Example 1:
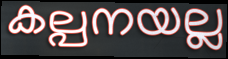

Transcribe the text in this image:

കല്പനയല്ല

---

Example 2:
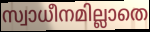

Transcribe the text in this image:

സ്വാധീനമില്ലാതെ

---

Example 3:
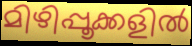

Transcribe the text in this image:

മിഴിപ്പൂക്കളിൽ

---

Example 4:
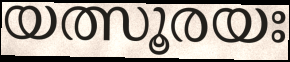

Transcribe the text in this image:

യത്സൂരയഃ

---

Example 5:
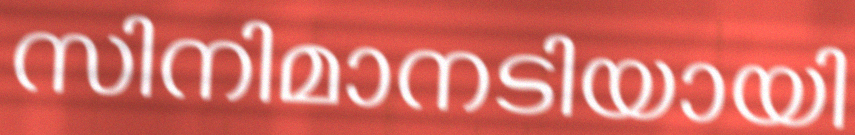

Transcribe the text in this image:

സിനിമാനടിയായി